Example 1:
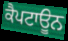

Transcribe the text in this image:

ਕੈਪਟਾਊਨ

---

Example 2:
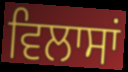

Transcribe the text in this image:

ਵਿਲਾਸਾਂ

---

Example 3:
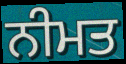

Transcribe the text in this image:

ਨੀਮਤ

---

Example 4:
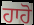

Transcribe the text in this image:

ਹਾਹੋ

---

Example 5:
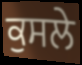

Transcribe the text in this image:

ਕੁਸਲੇ